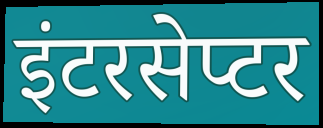
इंटरसेप्टर